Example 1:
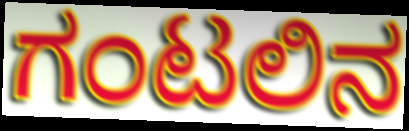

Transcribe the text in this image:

ಗಂಟಲಿನ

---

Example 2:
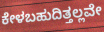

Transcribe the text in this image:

ಕೇಳಬಹುದಿತ್ತಲ್ಲವೇ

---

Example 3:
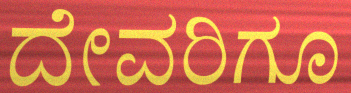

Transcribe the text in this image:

ದೇವರಿಗೂ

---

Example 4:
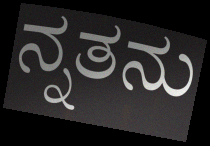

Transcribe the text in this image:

ನ್ನತನು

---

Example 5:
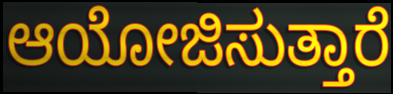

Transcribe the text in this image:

ಆಯೋಜಿಸುತ್ತಾರೆ